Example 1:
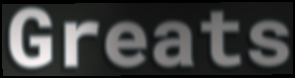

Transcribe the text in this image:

Greats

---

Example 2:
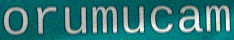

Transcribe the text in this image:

orumucam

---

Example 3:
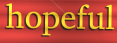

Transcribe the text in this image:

hopeful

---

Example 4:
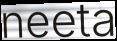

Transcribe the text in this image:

neeta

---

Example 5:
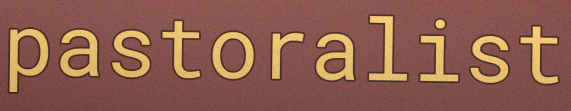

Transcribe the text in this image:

pastoralist